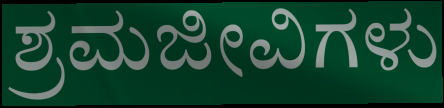
ಶ್ರಮಜೀವಿಗಳು